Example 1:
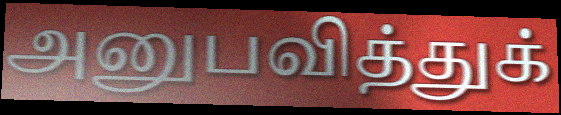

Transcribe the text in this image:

அனுபவித்துக்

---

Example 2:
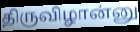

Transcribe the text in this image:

திருவிழான்னு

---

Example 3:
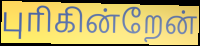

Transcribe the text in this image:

புரிகின்றேன்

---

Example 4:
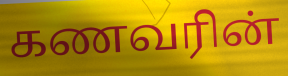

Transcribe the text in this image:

கணவரின்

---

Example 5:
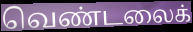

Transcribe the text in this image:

வெண்டலைக்